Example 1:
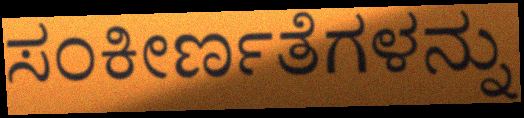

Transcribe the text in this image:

ಸಂಕೀರ್ಣತೆಗಳನ್ನು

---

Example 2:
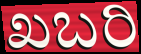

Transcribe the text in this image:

ಖಬರಿ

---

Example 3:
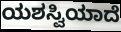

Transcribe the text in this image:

ಯಶಸ್ವಿಯಾದೆ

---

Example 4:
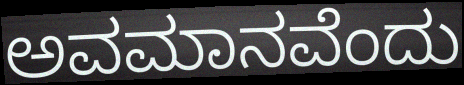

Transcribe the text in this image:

ಅವಮಾನವೆಂದು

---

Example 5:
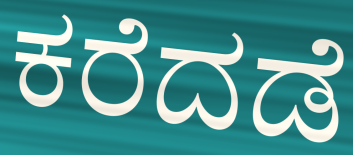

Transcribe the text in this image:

ಕರೆದಡೆ